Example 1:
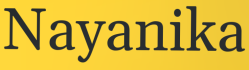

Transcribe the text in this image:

Nayanika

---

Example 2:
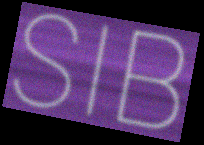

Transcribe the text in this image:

SIB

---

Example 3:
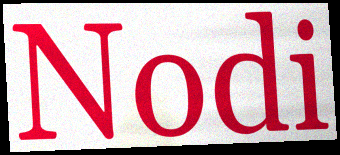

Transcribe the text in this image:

Nodi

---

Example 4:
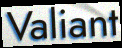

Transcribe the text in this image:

Valiant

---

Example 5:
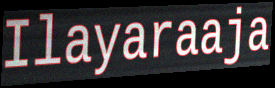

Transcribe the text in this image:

Ilayaraaja